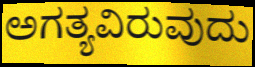
ಅಗತ್ಯವಿರುವುದು